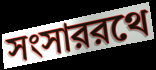
সংসাররথে